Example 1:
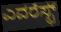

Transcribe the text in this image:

ಎವರೆಸ್ಟ್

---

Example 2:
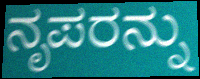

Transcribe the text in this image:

ನೃಪರನ್ನು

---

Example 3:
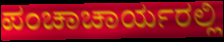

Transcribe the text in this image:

ಪಂಚಾಚಾರ್ಯರಲ್ಲಿ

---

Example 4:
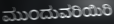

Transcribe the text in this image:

ಮುಂದುವರಿಯಿರಿ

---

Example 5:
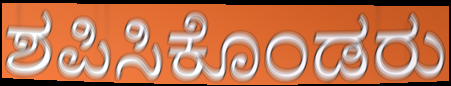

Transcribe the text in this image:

ಶಪಿಸಿಕೊಂಡರು